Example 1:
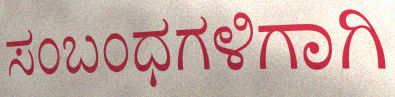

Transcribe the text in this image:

ಸಂಬಂಧಗಳಿಗಾಗಿ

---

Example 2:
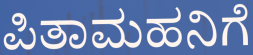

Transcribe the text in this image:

ಪಿತಾಮಹನಿಗೆ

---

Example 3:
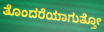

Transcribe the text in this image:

ತೊಂದರೆಯಾಗುತ್ತೋ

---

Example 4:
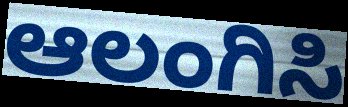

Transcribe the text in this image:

ಆಲಂಗಿಸಿ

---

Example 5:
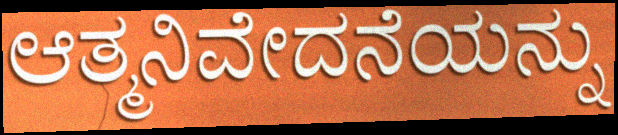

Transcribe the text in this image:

ಆತ್ಮನಿವೇದನೆಯನ್ನು